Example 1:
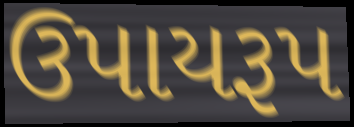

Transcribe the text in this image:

ઉપાયરૂપ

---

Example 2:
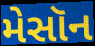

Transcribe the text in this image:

મેસૉન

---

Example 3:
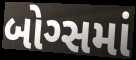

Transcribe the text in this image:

બોગ્સમાં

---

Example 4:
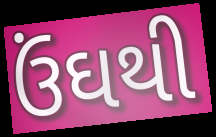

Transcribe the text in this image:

ઉંઘથી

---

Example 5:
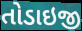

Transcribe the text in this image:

તોડાઇજી